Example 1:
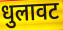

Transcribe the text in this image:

धुलावट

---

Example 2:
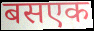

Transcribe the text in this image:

बसएक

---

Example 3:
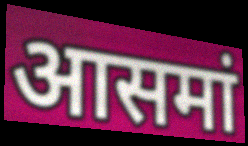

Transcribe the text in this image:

आसमां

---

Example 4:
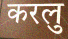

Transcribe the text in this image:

करलु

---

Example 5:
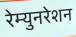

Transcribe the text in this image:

रेम्युनरेशन